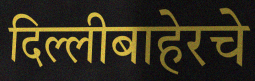
दिल्लीबाहेरचे